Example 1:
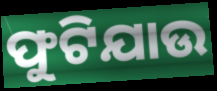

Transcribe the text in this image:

ଫୁଟିଯାଉ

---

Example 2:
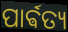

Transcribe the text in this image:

ପାର୍ଵତ୍ଯ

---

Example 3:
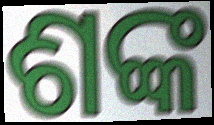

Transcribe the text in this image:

ଶଙ୍କ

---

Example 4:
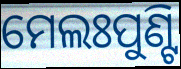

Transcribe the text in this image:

ମେଲଃପୁଣ୍ଟି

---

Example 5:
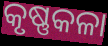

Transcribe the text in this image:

କୃଷ୍ଣକଳା